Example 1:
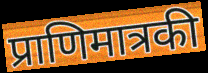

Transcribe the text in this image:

प्राणिमात्रकी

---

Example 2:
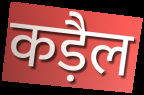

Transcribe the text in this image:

कड़ैल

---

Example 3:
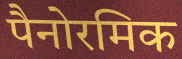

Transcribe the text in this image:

पैनोरमिक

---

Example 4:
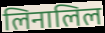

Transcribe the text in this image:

लिनालिल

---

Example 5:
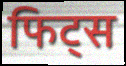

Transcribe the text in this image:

फिट्स